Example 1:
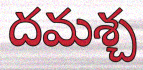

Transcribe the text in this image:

దమశ్చ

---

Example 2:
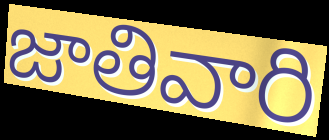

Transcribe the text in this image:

జాతివారి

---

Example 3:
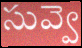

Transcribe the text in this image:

సువ్వె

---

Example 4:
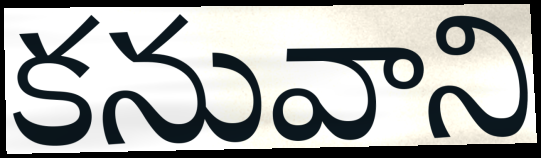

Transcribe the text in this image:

కనువాని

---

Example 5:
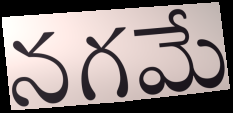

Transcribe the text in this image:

నగమే